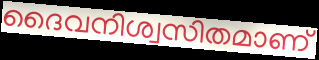
ദൈവനിശ്വസിതമാണ്